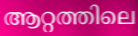
ആറ്റത്തിലെ